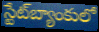
స్టేట్‌బ్యాంకులో